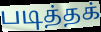
படித்தக்